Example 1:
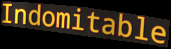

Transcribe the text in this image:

Indomitable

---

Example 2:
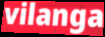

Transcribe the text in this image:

vilanga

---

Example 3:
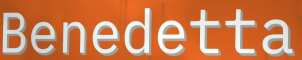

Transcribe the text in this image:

Benedetta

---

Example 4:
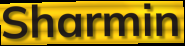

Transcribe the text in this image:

Sharmin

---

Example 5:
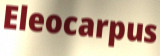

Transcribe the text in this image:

Eleocarpus